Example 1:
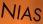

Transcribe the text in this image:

NIAS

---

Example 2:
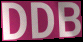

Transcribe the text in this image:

DDB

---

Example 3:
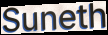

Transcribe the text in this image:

Suneth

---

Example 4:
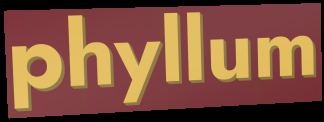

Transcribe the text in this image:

phyllum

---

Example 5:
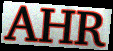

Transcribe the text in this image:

AHR